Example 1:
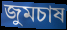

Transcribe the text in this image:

জুমচাষ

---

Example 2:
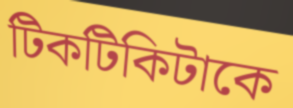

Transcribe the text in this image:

টিকটিকিটাকে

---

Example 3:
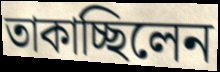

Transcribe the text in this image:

তাকাচ্ছিলেন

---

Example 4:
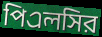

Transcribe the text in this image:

পিএলসির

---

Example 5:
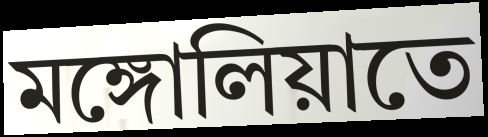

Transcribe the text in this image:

মঙ্গোলিয়াতে